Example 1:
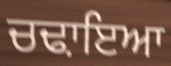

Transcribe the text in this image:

ਚਢ਼ਾਇਆ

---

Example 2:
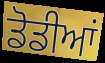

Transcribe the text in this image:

ਡੋਡੀਆਂ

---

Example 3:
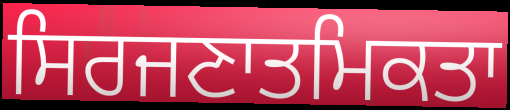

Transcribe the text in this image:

ਸਿਰਜਣਾਤਮਿਕਤਾ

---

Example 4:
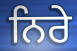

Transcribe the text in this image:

ਨਿਰੇ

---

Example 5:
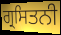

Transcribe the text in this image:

ਗ੍ਰਸਿਤਨੀ